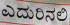
ಎದುರಿನಲಿ